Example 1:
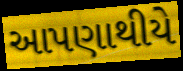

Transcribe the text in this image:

આપણાથીયે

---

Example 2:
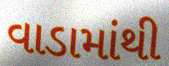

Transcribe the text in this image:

વાડામાંથી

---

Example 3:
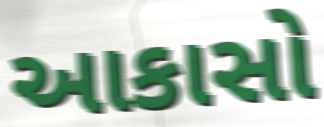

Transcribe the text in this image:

આકાસો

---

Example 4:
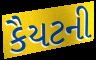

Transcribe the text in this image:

કૈયટની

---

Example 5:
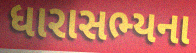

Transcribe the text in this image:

ધારાસભ્યના